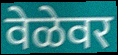
वेळेवर